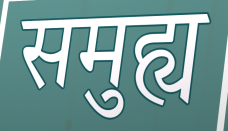
समुह्य